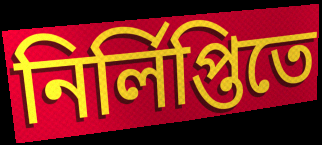
নির্লিপ্তিতে